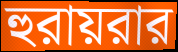
হুরায়রার